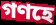
গণহে